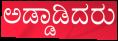
ಅಡ್ಡಾಡಿದರು